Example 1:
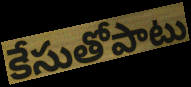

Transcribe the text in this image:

కేసుతోపాటు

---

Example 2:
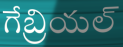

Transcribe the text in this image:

గేబ్రియల్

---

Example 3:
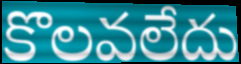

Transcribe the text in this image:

కొలవలేదు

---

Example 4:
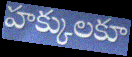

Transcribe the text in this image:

హక్కులకూ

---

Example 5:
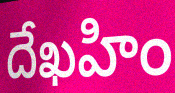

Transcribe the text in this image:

దేఖహిం